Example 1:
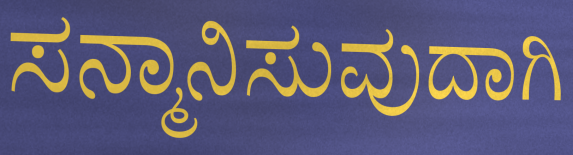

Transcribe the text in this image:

ಸನ್ಮಾನಿಸುವುದಾಗಿ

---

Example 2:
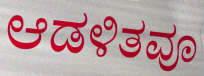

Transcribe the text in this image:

ಆಡಳಿತವೂ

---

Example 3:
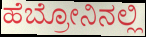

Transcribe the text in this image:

ಹೆಬ್ರೋನಿನಲ್ಲಿ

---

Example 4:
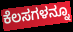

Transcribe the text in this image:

ಕೆಲಸಗಳನ್ನೂ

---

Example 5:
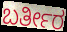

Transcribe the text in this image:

ಬರ್ತೀರ